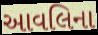
આવલિના